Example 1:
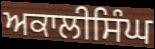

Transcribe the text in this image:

ਅਕਾਲੀਸਿੰਘ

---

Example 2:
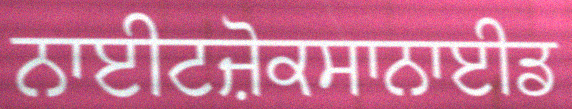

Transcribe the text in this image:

ਨਾਈਟਜ਼ੋਕਸਾਨਾਈਡ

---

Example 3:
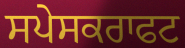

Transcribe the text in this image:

ਸਪੇਸਕਰਾਫਟ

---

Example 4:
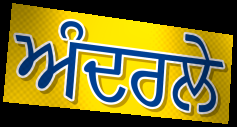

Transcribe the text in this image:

ਅੰਦਰਲੇ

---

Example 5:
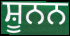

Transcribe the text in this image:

ਸ਼ੂਨਨ